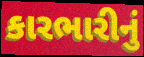
કારભારીનું